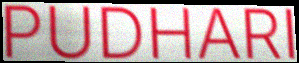
PUDHARI